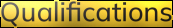
Qualifications